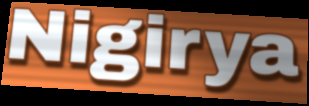
Nigirya